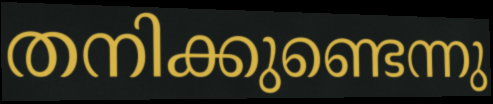
തനിക്കുണ്ടെന്നു